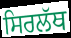
ਸਿਰਲੱਥ